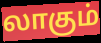
லாகும்